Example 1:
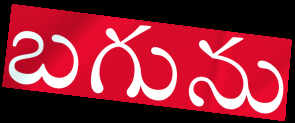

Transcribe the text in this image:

బగును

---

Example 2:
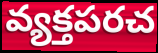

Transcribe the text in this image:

వ్యక్తపరచ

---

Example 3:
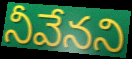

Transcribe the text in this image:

నీవేనని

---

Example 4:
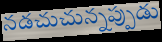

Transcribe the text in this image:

నడచుచున్నప్పుడు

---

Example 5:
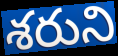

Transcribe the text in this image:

శరుని